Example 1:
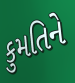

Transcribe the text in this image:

કુમતિને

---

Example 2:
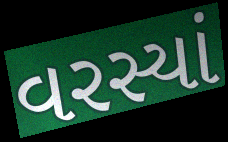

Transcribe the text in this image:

વરસ્યાં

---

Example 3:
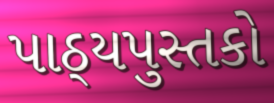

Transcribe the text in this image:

પાઠ્યપુસ્તકો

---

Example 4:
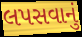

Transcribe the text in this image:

લપસવાનું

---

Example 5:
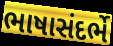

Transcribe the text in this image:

ભાષાસંદર્ભે